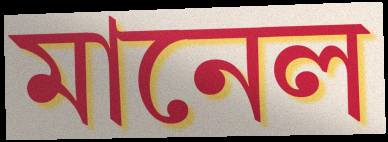
মানেল